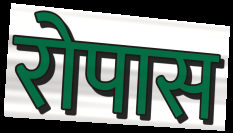
रोपास